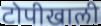
टोपीखाली